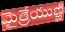
మైత్రేయుణ్ణి